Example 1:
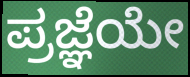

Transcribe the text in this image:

ಪ್ರಜ್ಞೆಯೇ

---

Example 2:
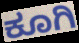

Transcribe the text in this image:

ಕೂಗಿ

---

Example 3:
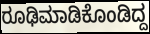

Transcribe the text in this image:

ರೂಢಿಮಾಡಿಕೊಂಡಿದ್ದ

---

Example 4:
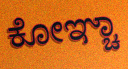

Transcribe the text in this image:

ಕೋಞ್ಚಾ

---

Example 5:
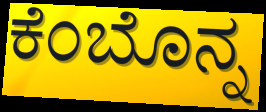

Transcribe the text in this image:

ಕೆಂಬೊನ್ನ